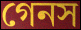
গেনস